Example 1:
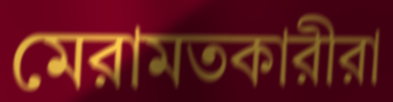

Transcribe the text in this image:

মেরামতকারীরা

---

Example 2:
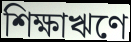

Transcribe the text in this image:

শিক্ষাঋণে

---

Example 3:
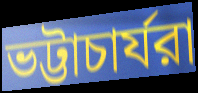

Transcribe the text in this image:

ভট্টাচার্যরা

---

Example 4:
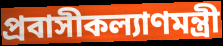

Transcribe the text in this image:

প্রবাসীকল্যাণমন্ত্রী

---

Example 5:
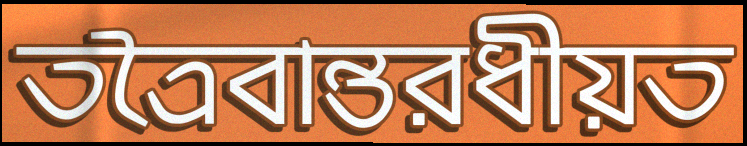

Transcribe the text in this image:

তত্রৈবান্তরধীয়ত